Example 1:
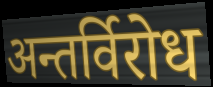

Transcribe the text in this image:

अन्तर्विरोध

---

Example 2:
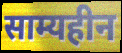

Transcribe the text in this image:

साम्यहीन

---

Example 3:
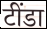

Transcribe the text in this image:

टींडा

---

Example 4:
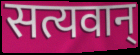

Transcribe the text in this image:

सत्यवान्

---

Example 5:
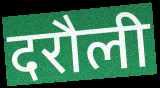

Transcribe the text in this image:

दरौली